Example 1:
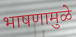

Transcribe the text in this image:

भाषणामुळे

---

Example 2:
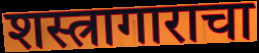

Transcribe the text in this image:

शस्त्रागाराचा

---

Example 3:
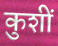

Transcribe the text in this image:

कुशीं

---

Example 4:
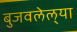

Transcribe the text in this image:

बुजवलेल्या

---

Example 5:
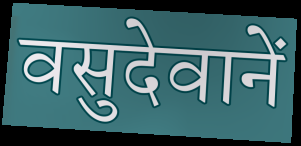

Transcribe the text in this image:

वसुदेवानें